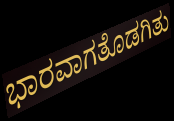
ಭಾರವಾಗತೊಡಗಿತು